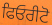
ਫਿਓਰੀਟੋ